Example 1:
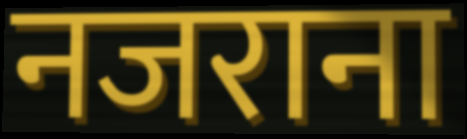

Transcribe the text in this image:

नजराना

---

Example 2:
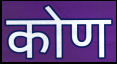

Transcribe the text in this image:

कोण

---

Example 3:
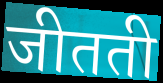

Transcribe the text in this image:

जीतती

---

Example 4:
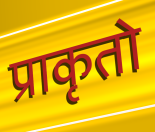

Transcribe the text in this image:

प्राकृतो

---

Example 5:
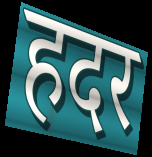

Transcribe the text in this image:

हदर